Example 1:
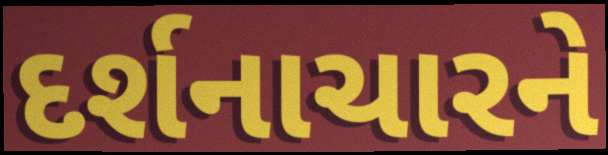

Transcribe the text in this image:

દર્શનાચારને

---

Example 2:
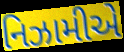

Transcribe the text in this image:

નિઝામીએ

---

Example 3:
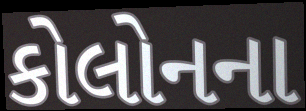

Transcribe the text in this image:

કોલોનના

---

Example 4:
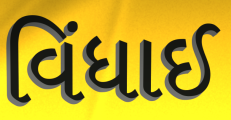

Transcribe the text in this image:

વિંધાઈ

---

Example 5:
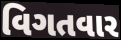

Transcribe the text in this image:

વિગતવાર